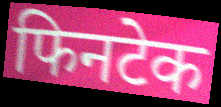
फिनटेक